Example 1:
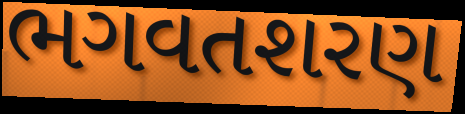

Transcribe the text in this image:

ભગવતશરણ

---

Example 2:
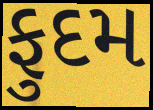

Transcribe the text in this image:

ફુદમ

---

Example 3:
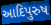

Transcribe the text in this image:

આદિપુરુષ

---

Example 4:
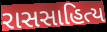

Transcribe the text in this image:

રાસસાહિત્ય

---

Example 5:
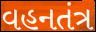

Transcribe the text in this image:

વહનતંત્ર